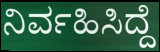
ನಿರ್ವಹಿಸಿದ್ದೆ